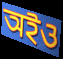
অইও